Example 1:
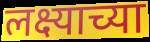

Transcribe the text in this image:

लक्ष्याच्या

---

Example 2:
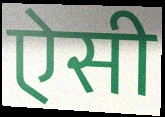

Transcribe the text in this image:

ऐसी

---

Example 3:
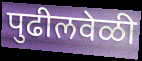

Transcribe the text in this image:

पुढीलवेळी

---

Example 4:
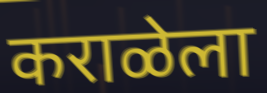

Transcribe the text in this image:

कराळेला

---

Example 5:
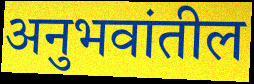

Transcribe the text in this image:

अनुभवांतील